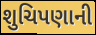
શુચિપણાની